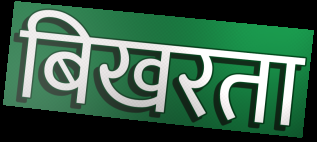
बिखरता